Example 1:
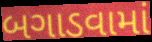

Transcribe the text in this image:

બગાડવામાં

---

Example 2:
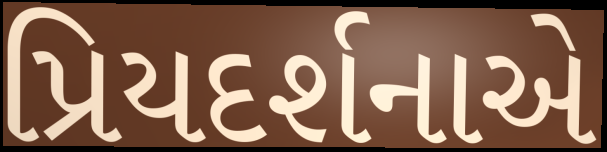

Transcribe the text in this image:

પ્રિયદર્શનાએ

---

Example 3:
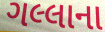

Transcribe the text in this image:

ગલ્લાના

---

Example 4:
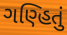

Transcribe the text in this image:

ગણ્હિતું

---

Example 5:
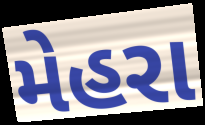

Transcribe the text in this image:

મેહરા